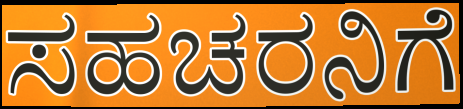
ಸಹಚರನಿಗೆ